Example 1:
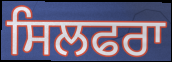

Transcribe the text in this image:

ਸਿਲਫਰਾ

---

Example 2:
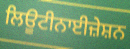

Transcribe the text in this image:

ਲਿਊਟੀਨਾਈਜ਼ੇਸ਼ਨ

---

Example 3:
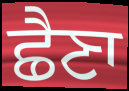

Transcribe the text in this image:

ਛੈਣਾ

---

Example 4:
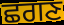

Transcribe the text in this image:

ਛਗਣ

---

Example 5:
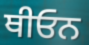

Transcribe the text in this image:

ਥੀਓਨ